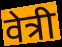
वेत्री